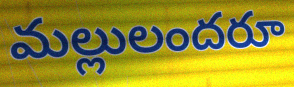
మల్లులందరూ